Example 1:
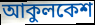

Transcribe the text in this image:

আকুলকেশ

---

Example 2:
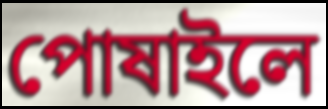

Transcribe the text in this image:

পোষাইলে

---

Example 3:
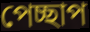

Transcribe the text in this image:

পেচ্ছাপ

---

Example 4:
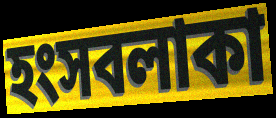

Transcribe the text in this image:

হংসবলাকা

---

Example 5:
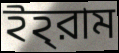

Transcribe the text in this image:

ইহ্‌রাম